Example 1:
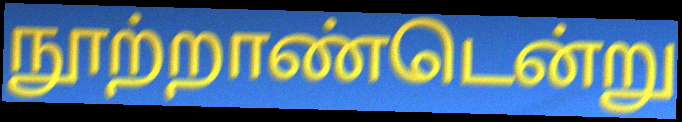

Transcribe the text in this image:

நூற்றாண்டென்று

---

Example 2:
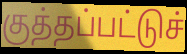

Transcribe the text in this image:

குத்தப்பட்டுச்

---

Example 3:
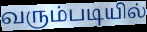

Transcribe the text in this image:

வரும்படியில்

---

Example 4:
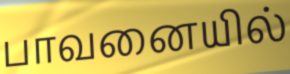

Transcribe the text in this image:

பாவனையில்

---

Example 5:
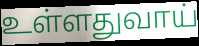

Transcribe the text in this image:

உள்ளதுவாய்